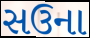
સઉના